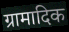
ग्रामादिक